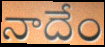
నాదేం